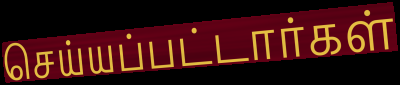
செய்யப்பட்டார்கள்